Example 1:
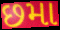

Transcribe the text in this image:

છમા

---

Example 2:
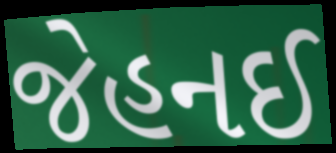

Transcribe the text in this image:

જેહનઈ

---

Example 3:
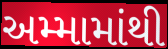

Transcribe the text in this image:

અમ્મામાંથી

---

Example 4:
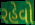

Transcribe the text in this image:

રહેવો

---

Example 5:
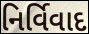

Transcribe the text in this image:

નિર્વિવાદ